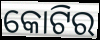
କୋଟିର